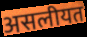
असलीयत